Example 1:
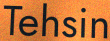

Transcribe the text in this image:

Tehsin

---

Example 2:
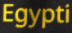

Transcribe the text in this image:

Egypti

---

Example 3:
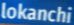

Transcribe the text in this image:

lokanchi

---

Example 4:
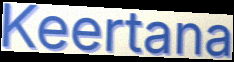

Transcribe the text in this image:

Keertana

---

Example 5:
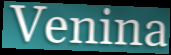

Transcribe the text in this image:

Venina